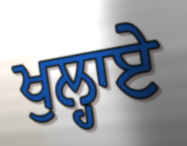
ਖੁਲ੍ਹਾਏ